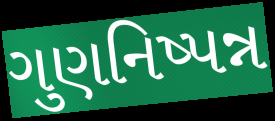
ગુણનિષ્પન્ન